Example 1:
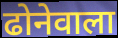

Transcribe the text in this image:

ढोनेवाला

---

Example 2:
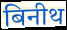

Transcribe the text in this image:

बिनीथ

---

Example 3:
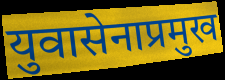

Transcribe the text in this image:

युवासेनाप्रमुख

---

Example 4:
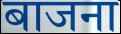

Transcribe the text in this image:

बाजना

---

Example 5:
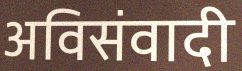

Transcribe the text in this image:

अविसंवादी